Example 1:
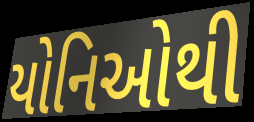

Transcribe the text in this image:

યોનિઓથી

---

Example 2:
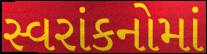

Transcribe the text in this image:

સ્વરાંકનોમાં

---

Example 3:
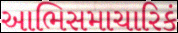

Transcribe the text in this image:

આભિસમાચારિકં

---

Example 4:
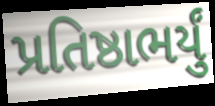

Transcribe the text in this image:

પ્રતિષ્ઠાભર્યું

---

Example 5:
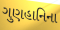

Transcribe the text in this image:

ગુણહાનિના